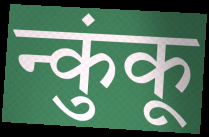
न्कुंकू